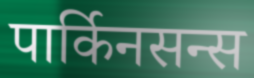
पार्किनसन्स